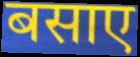
बसाए